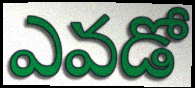
ఎవడో